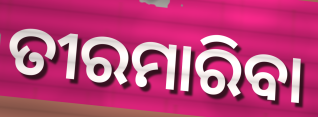
ତୀରମାରିବା